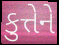
કુત્તેને